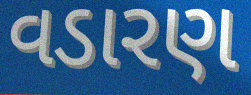
વડારણ